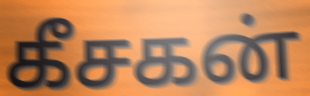
கீசகன்